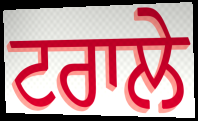
ਟਰਾਲੇ